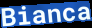
Bianca